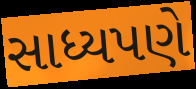
સાધ્યપણે